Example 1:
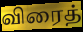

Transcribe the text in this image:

விரைத்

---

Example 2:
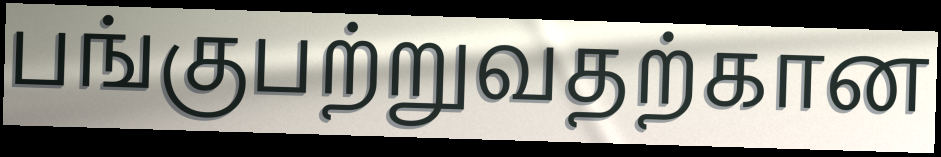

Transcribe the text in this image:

பங்குபற்றுவதற்கான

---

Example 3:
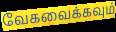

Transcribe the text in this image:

வேகவைக்கவும்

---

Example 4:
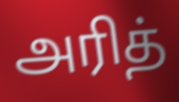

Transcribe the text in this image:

அரித்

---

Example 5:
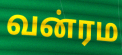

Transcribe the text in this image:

வன்ரம